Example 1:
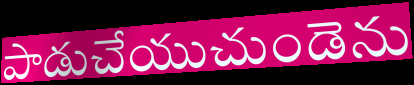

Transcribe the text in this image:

పాడుచేయుచుండెను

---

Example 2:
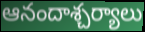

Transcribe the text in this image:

ఆనందాశ్చర్యాలు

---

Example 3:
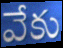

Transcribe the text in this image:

వేకు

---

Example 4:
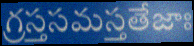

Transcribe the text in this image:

గ్రస్తసమస్తతేజాః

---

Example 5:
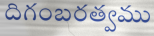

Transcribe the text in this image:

దిగంబరత్వము